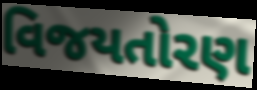
વિજયતોરણ